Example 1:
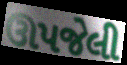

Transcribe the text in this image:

ઊપજેલી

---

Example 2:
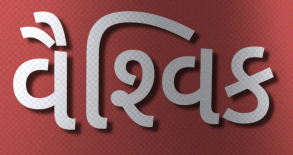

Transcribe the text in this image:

વૈશ્‍વિક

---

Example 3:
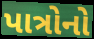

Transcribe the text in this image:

પાત્રોનો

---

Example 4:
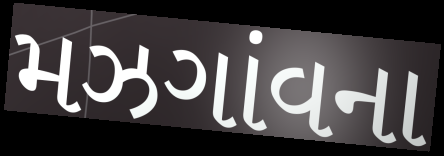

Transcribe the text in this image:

મઝગાંવના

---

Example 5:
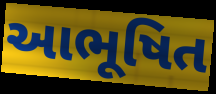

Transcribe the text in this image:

આભૂષિત